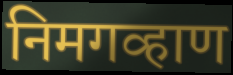
निमगव्हाण